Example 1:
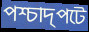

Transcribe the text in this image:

পশ্চাদ্‌পটে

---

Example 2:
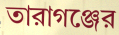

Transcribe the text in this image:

তারাগঞ্জের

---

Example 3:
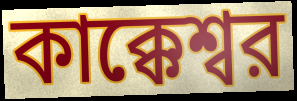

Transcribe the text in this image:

কাক্কেশ্বর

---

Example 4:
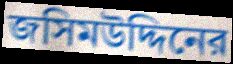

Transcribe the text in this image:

জসিমউদ্দিনের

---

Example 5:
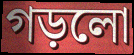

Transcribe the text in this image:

গড়লো